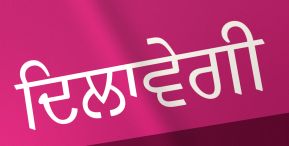
ਦਿਲਾਵੇਗੀ